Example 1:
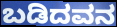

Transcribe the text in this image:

ಬಡಿದವನ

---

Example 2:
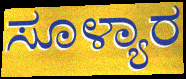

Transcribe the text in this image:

ಸೂಳ್ಯಾರ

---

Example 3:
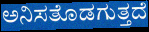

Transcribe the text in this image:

ಅನಿಸತೊಡಗುತ್ತದೆ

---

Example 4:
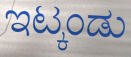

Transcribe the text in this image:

ಇಟ್ಕಂಡು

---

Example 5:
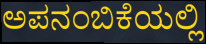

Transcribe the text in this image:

ಅಪನಂಬಿಕೆಯಲ್ಲಿ